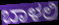
ಬಾಳಲಿ